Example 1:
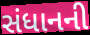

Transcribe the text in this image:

સંધાનની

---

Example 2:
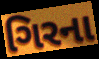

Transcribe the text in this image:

ગિરના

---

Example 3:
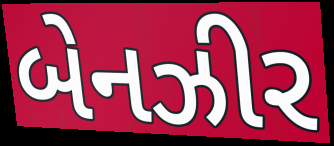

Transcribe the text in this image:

બેનઝીર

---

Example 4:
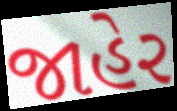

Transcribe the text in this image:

જાહેર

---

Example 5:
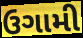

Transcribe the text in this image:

ઉગામી